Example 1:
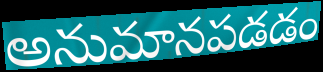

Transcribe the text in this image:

అనుమానపడడం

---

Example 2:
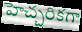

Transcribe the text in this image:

హెచ్చరికగా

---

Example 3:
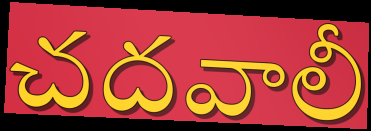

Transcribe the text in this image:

చదవాలీ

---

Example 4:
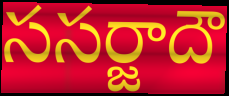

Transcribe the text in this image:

ససర్జాదౌ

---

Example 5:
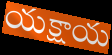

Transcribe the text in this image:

యక్షాయ